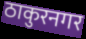
ठाकुरनगर